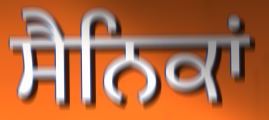
ਸੈਨਿਕਾਂ